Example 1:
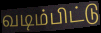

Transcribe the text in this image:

வடிம்பிட்டு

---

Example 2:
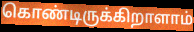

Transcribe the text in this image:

கொண்டிருக்கிறாளாம்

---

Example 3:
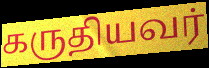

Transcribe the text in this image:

கருதியவர்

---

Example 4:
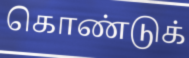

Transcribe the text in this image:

கொண்டுக்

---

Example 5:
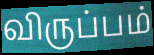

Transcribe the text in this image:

விருப்பம்